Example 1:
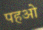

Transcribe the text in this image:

पहओ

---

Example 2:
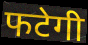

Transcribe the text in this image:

फटेगी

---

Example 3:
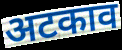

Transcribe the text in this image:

अटकाव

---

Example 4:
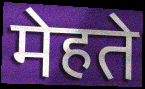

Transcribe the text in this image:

मेहते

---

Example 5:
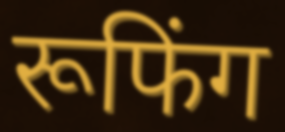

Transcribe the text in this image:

रूफिंग